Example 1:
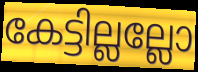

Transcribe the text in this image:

കേട്ടില്ലല്ലോ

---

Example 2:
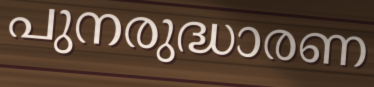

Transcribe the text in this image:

പുനരുദ്ധാരണ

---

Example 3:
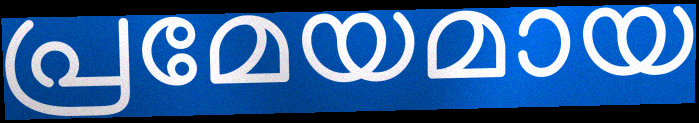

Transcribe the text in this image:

പ്രമേയമായ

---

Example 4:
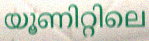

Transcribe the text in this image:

യൂണിറ്റിലെ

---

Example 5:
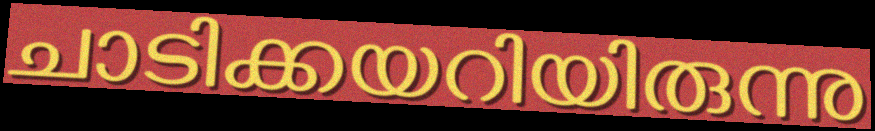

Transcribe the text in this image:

ചാടിക്കയറിയിരുന്നു